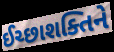
ઈચ્છાશક્તિને